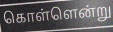
கொள்ளென்று